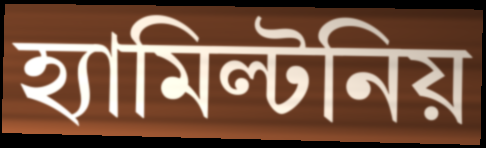
হ্যামিল্টনিয়